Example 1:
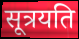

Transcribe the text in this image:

सूत्रयति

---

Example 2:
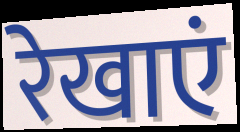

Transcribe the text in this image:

रेखाएं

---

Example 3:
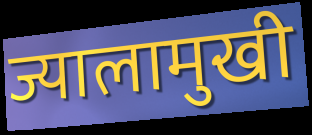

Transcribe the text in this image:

ज्यालामुखी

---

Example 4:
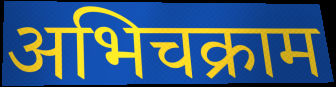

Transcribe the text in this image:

अभिचक्राम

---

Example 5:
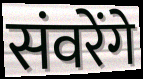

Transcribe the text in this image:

संवरेंगे